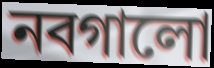
নবগালো